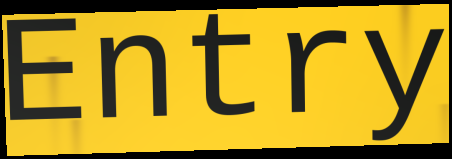
Entry